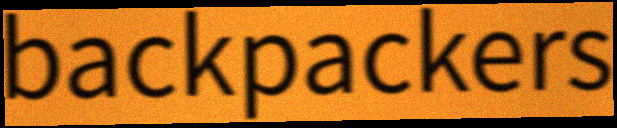
backpackers